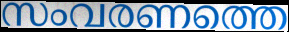
സംവരണത്തെ